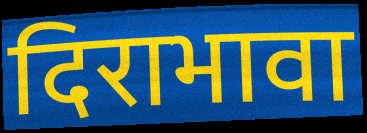
दिराभावा